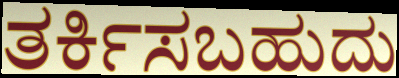
ತರ್ಕಿಸಬಹುದು